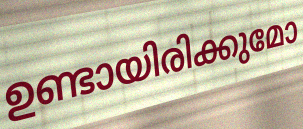
ഉണ്ടായിരിക്കുമോ